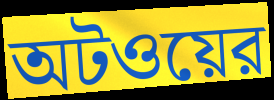
অটওয়ের